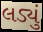
લડ્યું